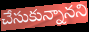
చేసుకున్నానని